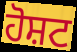
ਹੋਸ਼ਟ